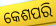
କେଶପରି